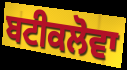
ਬਟੀਕਲੋਵਾ